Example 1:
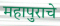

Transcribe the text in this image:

महापुराचे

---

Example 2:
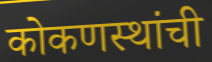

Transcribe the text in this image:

कोकणस्थांची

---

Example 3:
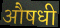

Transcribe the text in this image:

औषधी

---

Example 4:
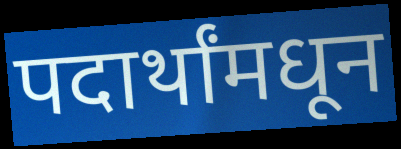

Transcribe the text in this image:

पदार्थांमधून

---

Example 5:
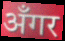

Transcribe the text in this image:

अँगर